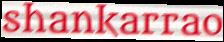
shankarrao